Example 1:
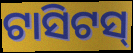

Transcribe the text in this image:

ଟାସିଟସ୍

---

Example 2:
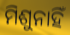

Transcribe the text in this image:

ମିଶୁନାହିଁ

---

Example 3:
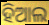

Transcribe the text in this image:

ହିଆଲ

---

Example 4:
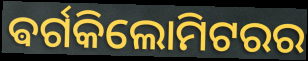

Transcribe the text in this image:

ଵର୍ଗକିଲୋମିଟରର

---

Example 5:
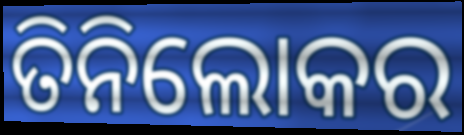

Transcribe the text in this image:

ତିନିଲୋକର